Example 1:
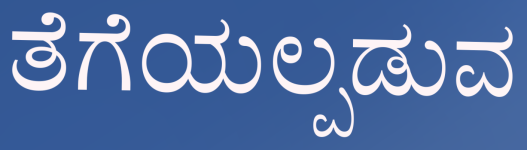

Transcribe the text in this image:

ತೆಗೆಯಲ್ಪಡುವ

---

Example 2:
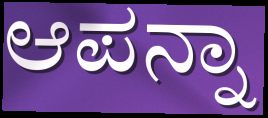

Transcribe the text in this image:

ಆಪನ್ನಾ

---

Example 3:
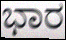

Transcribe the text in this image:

ಭಾರ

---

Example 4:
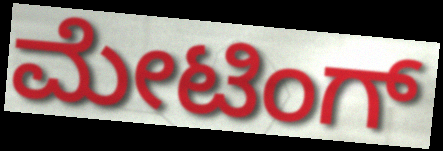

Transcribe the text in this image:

ಮೇಟಿಂಗ್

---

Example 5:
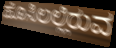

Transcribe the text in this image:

ಹೊಸಿಲಲ್ಲಿರುವ